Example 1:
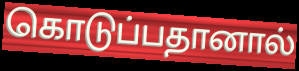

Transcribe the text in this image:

கொடுப்பதானால்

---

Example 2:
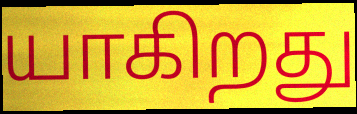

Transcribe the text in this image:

யாகிறது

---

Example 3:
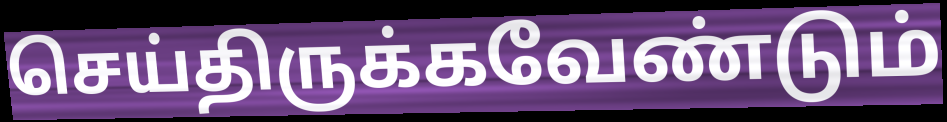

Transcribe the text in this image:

செய்திருக்கவேண்டும்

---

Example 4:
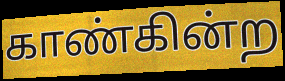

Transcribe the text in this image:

காண்கின்ற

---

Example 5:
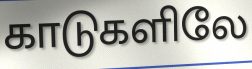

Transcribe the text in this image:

காடுகளிலே